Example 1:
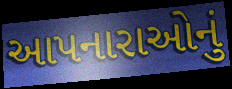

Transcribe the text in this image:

આપનારાઓનું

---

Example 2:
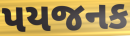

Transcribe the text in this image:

પયજનક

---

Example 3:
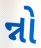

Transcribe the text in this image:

ન્નો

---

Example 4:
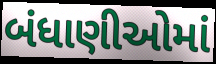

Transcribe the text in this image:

બંધાણીઓમાં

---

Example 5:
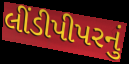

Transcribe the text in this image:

લીંડીપીપરનું